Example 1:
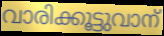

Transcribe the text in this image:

വാരിക്കൂട്ടുവാന്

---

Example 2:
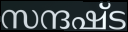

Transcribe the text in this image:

സന്ദഷ്ട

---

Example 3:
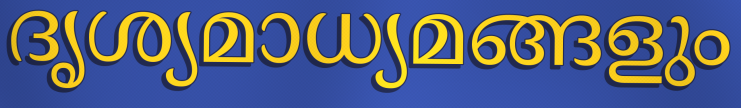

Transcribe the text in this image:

ദൃശ്യമാധ്യമങ്ങളും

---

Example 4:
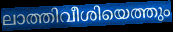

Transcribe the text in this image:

ലാത്തിവീശിയെത്തും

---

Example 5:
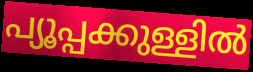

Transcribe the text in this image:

പ്യൂപ്പക്കുള്ളിൽ